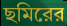
ছমিরের